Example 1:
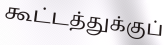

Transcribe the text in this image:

கூட்டத்துக்குப்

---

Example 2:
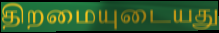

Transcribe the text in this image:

திறமையுடையது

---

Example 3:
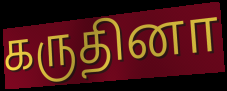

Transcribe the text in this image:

கருதினா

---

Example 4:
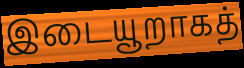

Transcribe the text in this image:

இடையூறாகத்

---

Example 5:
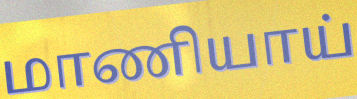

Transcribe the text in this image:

மாணியாய்